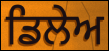
ਡਿਲੇਅ